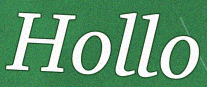
Hollo